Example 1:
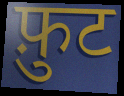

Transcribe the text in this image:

फ़ुट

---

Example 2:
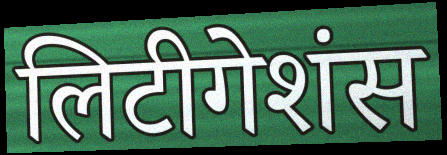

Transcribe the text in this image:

लिटीगेशंस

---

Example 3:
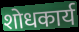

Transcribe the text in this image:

शोधकार्य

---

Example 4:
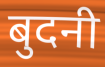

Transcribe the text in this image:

बुदनी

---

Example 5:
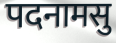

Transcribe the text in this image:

पदनामसु